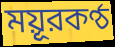
ময়ূরকণ্ঠ